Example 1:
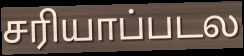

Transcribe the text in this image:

சரியாப்படல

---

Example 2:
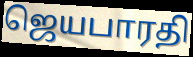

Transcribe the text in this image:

ஜெயபாரதி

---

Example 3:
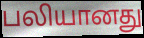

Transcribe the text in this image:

பலியானது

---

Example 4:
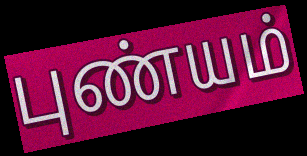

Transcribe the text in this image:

புண்யம்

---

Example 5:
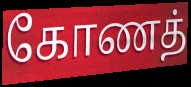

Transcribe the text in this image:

கோணத்